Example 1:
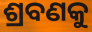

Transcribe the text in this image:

ଶ୍ରବଣକୁ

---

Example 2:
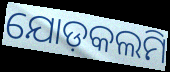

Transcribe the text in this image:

ଯୋଡ଼କଲମି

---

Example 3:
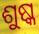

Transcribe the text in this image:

ଶୁଷ୍କ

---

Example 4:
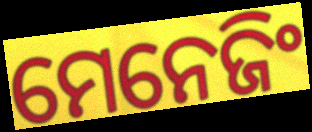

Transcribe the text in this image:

ମେନେଜିଂ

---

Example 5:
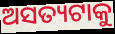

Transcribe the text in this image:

ଅସତ୍ୟଟାକୁ